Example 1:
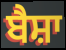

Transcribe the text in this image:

ਬੈਸ਼ਾ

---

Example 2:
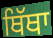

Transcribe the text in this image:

ਥਿੱਥਾ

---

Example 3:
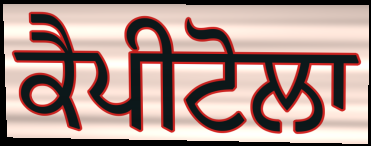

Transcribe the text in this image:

ਕੈਪੀਟੋਲਾ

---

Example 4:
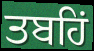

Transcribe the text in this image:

ਤਬਹਿਂ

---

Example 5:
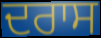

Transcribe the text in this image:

ਦਰਾਸ